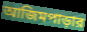
আজিমপাড়ার